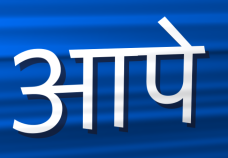
आपे